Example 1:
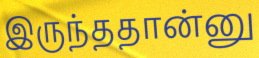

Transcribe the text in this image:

இருந்ததான்னு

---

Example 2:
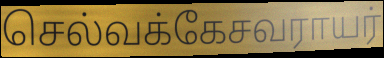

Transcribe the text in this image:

செல்வக்கேசவராயர்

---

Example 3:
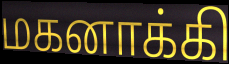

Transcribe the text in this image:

மகனாக்கி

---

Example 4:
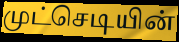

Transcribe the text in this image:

முட்செடியின்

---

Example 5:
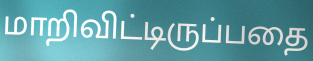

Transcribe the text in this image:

மாறிவிட்டிருப்பதை